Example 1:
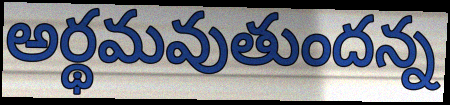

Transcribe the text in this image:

అర్థమవుతుందన్న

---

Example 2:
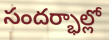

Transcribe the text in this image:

సందర్భాల్లో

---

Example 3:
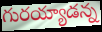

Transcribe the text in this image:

గురయ్యాడన్న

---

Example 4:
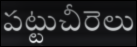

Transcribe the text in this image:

పట్టుచీరెలు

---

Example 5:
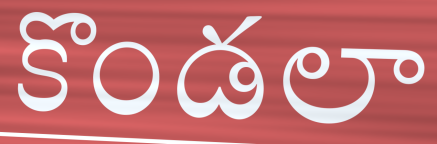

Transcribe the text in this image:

కొండలా